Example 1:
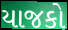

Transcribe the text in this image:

યાજકો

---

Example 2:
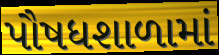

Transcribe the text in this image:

પૌષધશાળામાં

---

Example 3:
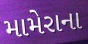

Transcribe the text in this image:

મામેરાના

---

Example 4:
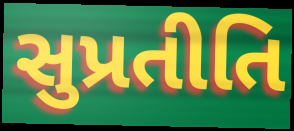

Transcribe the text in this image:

સુપ્રતીતિ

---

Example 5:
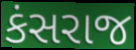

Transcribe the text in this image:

કંસરાજ